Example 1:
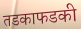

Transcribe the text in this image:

तडकाफडकी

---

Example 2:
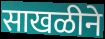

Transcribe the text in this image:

साखळीने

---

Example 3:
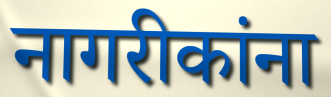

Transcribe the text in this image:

नागरीकांना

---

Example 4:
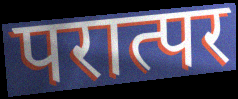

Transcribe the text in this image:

परात्पर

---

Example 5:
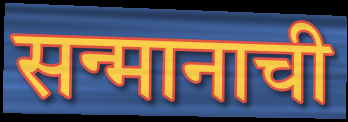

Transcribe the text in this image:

सन्मानाची